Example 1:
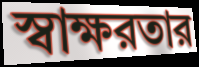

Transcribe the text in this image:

স্বাক্ষরতার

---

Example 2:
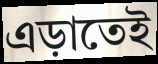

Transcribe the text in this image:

এড়াতেই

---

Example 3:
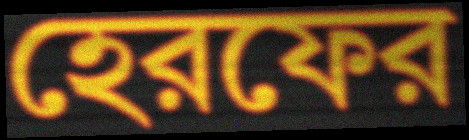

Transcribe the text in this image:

হেরফের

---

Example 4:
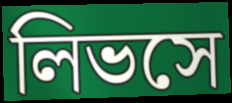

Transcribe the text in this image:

লিভসে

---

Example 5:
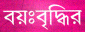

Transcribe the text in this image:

বয়ঃবৃদ্ধির